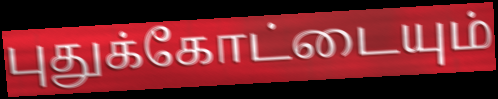
புதுக்கோட்டையும்